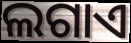
ଲଗାଏ